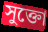
সুক্তো